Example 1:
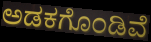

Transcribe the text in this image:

ಅಡಕಗೊಂಡಿವೆ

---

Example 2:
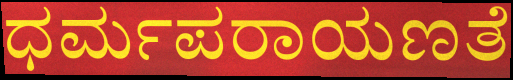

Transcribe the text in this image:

ಧರ್ಮಪರಾಯಣತೆ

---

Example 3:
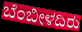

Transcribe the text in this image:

ಬೆಂಬೀಳದಿರು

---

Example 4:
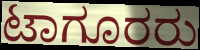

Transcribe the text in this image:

ಟಾಗೂರರು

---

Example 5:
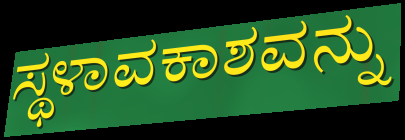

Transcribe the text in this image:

ಸ್ಥಳಾವಕಾಶವನ್ನು